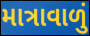
માત્રાવાળું